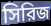
সিরিজ